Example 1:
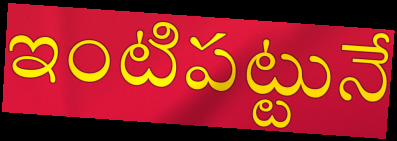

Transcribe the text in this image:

ఇంటిపట్టునే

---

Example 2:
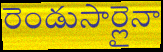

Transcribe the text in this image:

రెండుసార్లైనా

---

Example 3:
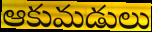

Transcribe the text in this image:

ఆకుమడులు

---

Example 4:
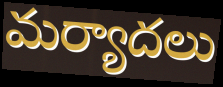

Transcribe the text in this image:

మర్యాదలు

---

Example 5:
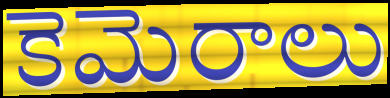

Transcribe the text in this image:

కెమెరాలు